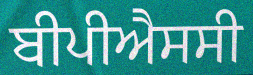
ਬੀਪੀਐਸਸੀ